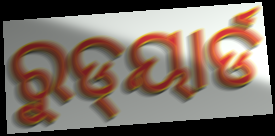
ରୁଡ୍‌ୟାର୍ଡ